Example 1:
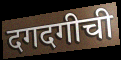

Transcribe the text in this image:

दगदगीची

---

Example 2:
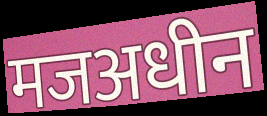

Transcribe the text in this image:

मजअधीन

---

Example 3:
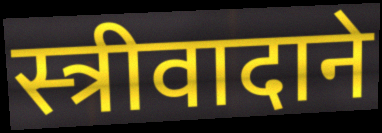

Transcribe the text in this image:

स्त्रीवादाने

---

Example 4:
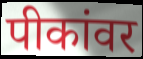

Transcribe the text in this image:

पीकांवर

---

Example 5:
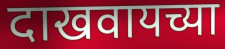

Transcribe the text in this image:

दाखवायच्या